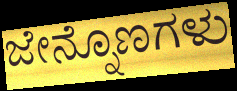
ಜೇನ್ನೊಣಗಳು